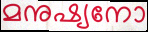
മനുഷ്യനോ